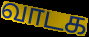
வாடக